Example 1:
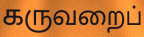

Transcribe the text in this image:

கருவறைப்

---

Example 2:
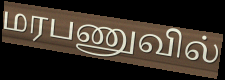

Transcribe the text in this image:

மரபணுவில்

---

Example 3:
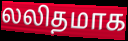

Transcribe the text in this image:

லலிதமாக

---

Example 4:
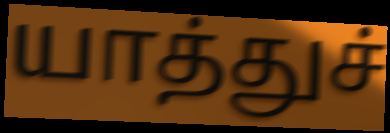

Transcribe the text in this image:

யாத்துச்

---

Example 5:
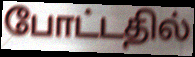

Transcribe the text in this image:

போட்டதில்